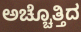
ಅಚ್ಚೊತ್ತಿದ